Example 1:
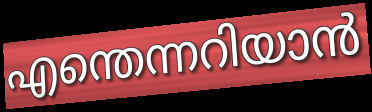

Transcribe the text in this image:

എന്തെന്നറിയാൻ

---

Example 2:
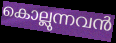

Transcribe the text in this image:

കൊല്ലുന്നവൻ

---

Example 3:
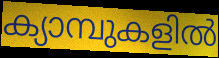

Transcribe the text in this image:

ക്യാമ്പുകളിൽ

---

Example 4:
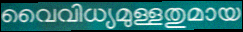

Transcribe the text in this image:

വൈവിധ്യമുള്ളതുമായ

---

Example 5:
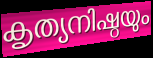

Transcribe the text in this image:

കൃത്യനിഷ്ഠയും